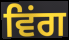
ਵਿਂਗ